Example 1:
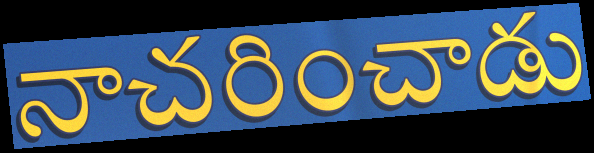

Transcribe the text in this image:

నాచరించాడు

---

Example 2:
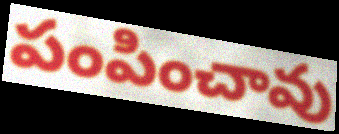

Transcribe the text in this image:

పంపించావు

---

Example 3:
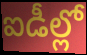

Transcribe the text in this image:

ఐడీల్లో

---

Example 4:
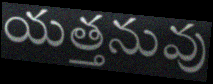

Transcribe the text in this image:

యత్తనువు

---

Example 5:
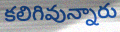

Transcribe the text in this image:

కలిగివున్నారు